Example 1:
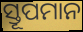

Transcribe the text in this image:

ସ୍ତୂପମାନ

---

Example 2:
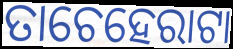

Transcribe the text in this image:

ତାଚେହେରାଟା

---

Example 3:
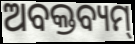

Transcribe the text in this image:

ଅବକ୍ତବ୍ୟମ୍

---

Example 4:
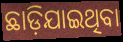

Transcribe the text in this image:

ଛାଡ଼ିଯାଇଥିବା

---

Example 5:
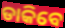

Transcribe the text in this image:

ଡାକିବେ